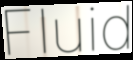
Fluid